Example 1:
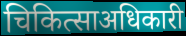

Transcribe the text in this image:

चिकित्साअधिकारी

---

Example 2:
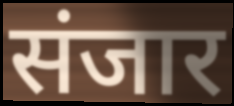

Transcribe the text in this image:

संजार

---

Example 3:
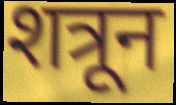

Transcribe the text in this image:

शत्रून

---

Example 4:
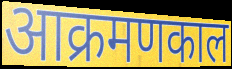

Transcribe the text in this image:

आक्रमणकाल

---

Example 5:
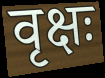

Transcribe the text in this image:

वृक्षः